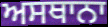
ਅਸਥਾਨਾ